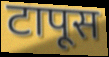
टापूस